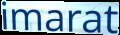
imarat